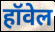
हॉवेल